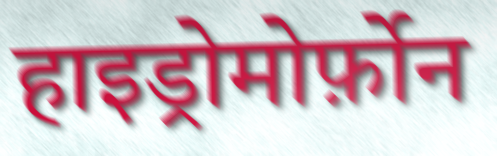
हाइड्रोमोर्फ़ोन